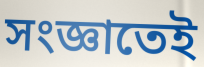
সংজ্ঞাতেই